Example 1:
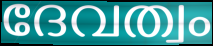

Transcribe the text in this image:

ദേവത്വം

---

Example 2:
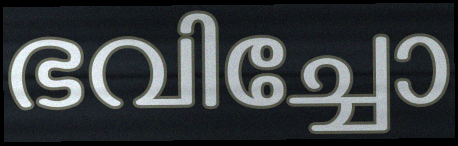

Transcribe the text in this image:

ഭവിച്ചോ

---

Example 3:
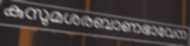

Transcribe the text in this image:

കുസുമശരബാണഭാവേന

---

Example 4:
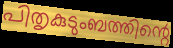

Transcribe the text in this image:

പിതൃകുടുംബത്തിന്റെ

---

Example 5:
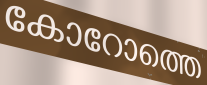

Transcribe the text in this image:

കോറോത്തെ